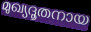
മുഖ്യദൂതനായ